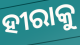
ହୀରାକୁ